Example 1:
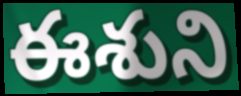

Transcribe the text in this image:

ఈశుని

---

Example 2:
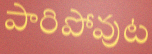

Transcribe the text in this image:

పారిపోవుట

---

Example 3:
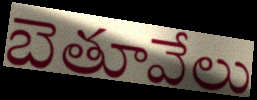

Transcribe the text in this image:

బెతూవేలు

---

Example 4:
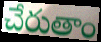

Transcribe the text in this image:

చేరుతాం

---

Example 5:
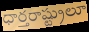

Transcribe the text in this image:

ధార్తరాష్ట్రులూ